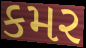
કમર